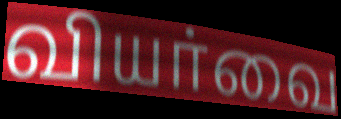
வியர்வை